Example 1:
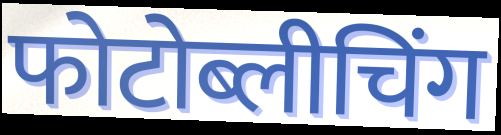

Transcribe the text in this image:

फोटोब्लीचिंग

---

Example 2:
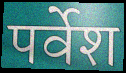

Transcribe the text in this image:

पर्वेश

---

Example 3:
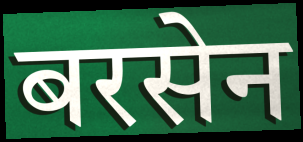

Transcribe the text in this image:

बरसेन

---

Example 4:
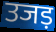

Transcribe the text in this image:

उजड़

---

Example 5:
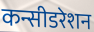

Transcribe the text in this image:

कन्सीडरेशन